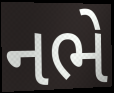
નભે